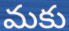
మకు